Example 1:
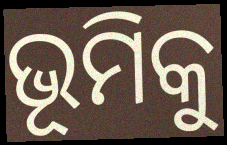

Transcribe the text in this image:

ଭୂମିକୁ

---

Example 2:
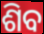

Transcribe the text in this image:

ଶିବ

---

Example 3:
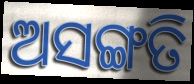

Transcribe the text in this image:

ଅସଙ୍ଗତି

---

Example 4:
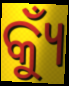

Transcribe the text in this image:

କ୍ୟୁଁ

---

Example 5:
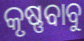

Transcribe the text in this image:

କୃଷ୍ଣବାବୁ